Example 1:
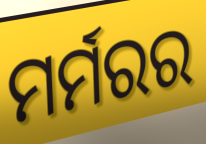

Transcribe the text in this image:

ମର୍ମରର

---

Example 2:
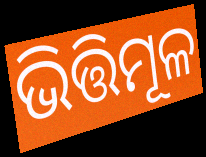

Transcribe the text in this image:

ଭିତ୍ତିମୂଳ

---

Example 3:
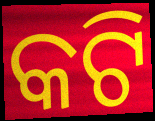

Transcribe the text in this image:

କଟି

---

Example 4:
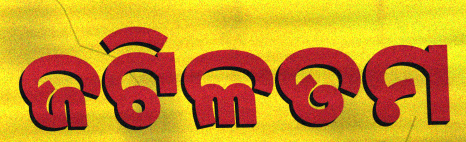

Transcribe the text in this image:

ଜଟିଳତମ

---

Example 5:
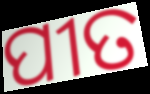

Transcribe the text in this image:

ପୀତ